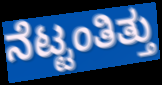
ನೆಟ್ಟಂತಿತ್ತು